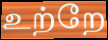
உற்றே